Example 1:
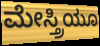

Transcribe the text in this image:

ಮೇಸ್ತ್ರಿಯೂ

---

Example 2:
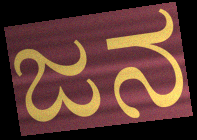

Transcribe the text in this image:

ಜನ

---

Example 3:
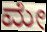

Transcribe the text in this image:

ಮೇ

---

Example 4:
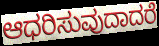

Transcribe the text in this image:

ಆಧರಿಸುವುದಾದರೆ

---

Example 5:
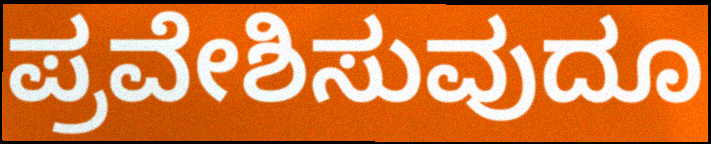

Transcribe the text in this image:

ಪ್ರವೇಶಿಸುವುದೂ